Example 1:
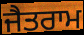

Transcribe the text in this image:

ਜੈਤਰਾਮ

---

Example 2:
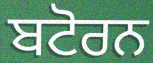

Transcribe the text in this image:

ਬਟੋਰਨ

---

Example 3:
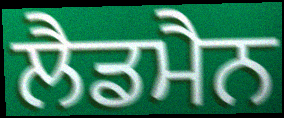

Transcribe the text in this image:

ਲੈਡਮੈਨ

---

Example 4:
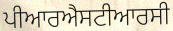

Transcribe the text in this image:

ਪੀਆਰਐਸਟੀਆਰਸੀ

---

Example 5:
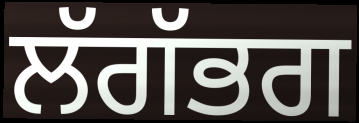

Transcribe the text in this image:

ਲੱਗੱਭਗ